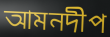
আমনদীপ